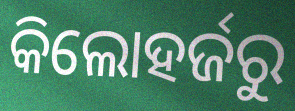
କିଲୋହର୍ଜରୁ